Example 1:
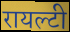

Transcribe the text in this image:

रायल्टी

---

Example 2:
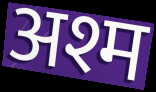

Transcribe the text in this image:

अश्म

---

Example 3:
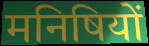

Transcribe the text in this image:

मनिषियों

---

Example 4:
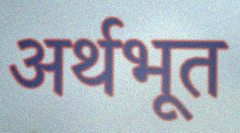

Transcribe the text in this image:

अर्थभूत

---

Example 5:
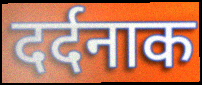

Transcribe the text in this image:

दर्दनाक